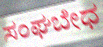
ಸಂಘಬೇಧ